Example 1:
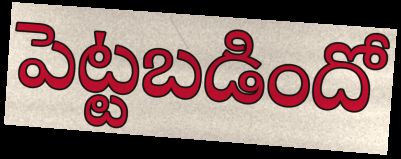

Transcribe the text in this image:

పెట్టబడిందో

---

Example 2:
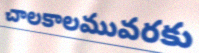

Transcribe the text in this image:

చాలకాలమువరకు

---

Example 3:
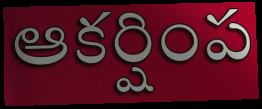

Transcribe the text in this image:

ఆకర్షింప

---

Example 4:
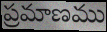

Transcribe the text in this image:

ప్రమాణము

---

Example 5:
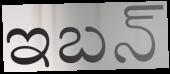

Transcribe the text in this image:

ఇబన్